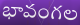
భావంగల